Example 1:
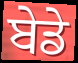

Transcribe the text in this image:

ਬੇਡੇ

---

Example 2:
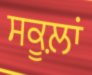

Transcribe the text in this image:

ਸਕੂਲ਼ਾਂ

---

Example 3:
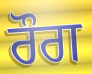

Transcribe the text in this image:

ਰੌਗ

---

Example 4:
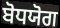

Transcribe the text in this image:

ਬੋਧਯੋਗ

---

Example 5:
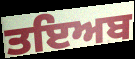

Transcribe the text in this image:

ਤਇਅਬ